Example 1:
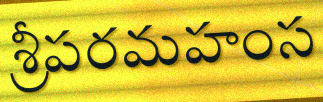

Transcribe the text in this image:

శ్రీపరమహంస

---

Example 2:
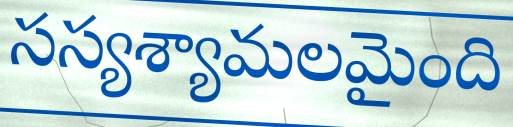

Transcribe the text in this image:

సస్యశ్యామలమైంది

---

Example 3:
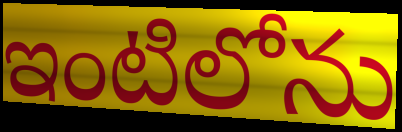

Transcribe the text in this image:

ఇంటిలోను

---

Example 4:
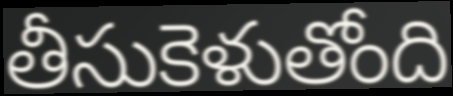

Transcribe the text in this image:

తీసుకెళుతోంది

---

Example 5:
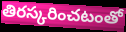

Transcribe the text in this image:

తిరస్కరించటంతో